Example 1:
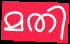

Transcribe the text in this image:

മതി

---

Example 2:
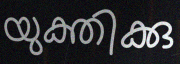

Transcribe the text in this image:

യുക്തിക്കു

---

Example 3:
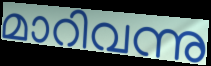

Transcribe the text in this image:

മാറിവന്നു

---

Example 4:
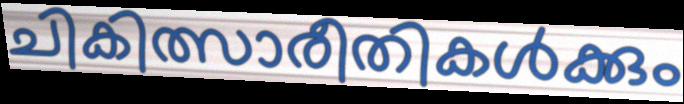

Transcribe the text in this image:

ചികിത്സാരീതികൾക്കും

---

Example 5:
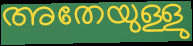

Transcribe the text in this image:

അതേയുള്ളു